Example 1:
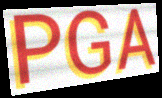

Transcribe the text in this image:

PGA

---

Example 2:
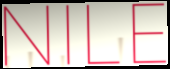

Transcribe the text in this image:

NILE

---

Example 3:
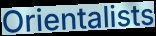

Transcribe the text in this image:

Orientalists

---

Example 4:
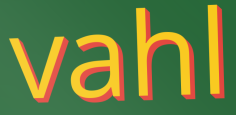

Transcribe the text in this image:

vahl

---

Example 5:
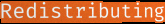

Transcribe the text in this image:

Redistributing